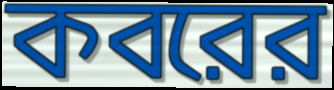
কবরের